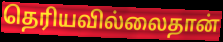
தெரியவில்லைதான்